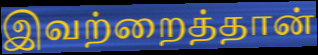
இவற்றைத்தான்